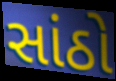
સાંઠો